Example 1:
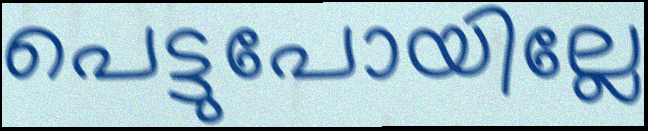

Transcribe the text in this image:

പെട്ടുപോയില്ലേ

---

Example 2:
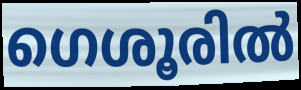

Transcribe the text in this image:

ഗെശൂരിൽ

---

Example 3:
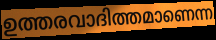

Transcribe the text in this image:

ഉത്തരവാദിത്തമാണെന്ന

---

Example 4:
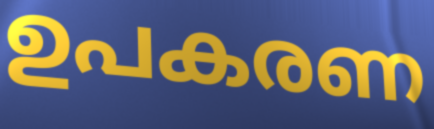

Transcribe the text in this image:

ഉപകരണ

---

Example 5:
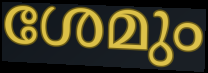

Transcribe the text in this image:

ശേമും